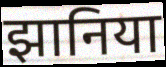
झानिया